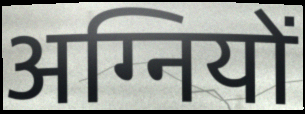
अग्नियों